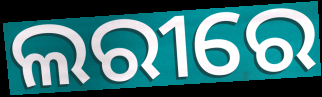
ଲରୀରେ